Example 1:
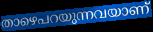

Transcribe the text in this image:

താഴെപറയുന്നവയാണ്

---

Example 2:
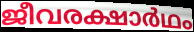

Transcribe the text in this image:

ജീവരക്ഷാർഥം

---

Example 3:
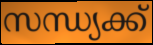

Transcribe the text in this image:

സന്ധ്യക്ക്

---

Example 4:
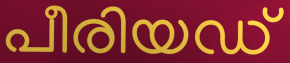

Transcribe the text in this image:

പീരിയഡ്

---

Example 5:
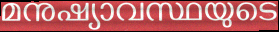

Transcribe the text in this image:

മനുഷ്യാവസ്ഥയുടെ